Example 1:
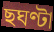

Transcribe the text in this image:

ছঘণ্টা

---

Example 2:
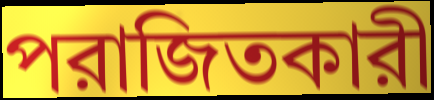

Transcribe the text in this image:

পরাজিতকারী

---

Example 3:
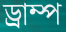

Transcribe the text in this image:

ড্রাম্প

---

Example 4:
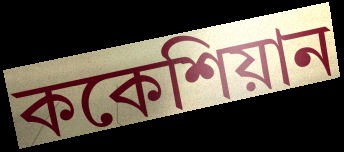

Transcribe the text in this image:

ককেশিয়ান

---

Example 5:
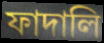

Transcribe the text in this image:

ফাদালি